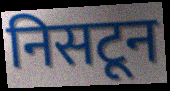
निसटून